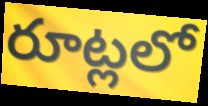
రూట్లలో